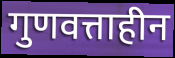
गुणवत्ताहीन